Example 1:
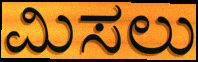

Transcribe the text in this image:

ಮಿಸಲು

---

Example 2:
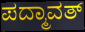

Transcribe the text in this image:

ಪದ್ಮಾವತ್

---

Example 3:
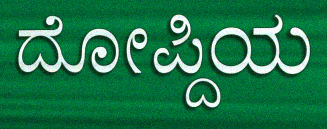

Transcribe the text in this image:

ದೋಪ್ದಿಯ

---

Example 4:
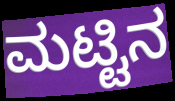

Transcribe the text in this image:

ಮಟ್ಟಿನ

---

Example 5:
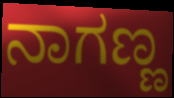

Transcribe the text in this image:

ನಾಗಣ್ಣ